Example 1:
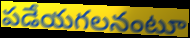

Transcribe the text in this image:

పడేయగలనంటూ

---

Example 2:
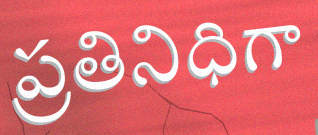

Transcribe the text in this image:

ప్రతినిధిగా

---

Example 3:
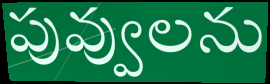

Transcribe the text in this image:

పువ్వులను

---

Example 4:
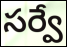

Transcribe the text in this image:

సర్వే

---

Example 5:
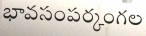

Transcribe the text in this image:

భావసంపర్కంగల